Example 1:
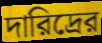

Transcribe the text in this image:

দারিদ্রের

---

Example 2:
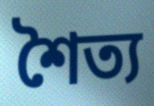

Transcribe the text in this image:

শৈত্য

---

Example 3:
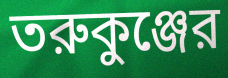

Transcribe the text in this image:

তরুকুঞ্জের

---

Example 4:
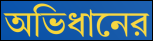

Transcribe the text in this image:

অভিধানের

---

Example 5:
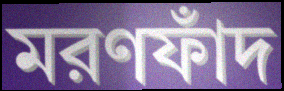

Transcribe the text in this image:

মরণফাঁদ